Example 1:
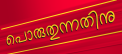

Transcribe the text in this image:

പൊരുതുന്നതിനു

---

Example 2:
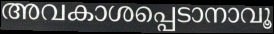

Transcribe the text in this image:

അവകാശപ്പെടാനാവൂ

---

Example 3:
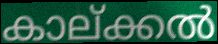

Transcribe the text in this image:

കാല്ക്കൽ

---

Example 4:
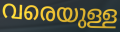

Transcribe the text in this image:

വരെയുള്ള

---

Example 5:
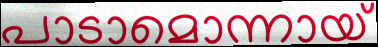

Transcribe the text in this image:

പാടാമൊന്നായ്